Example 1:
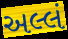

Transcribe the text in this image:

અલ્લં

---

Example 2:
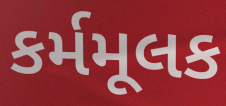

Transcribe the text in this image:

કર્મમૂલક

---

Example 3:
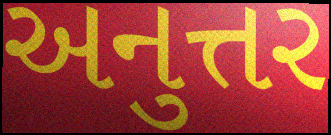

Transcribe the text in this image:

અનુત્તર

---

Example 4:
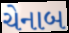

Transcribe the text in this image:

ચેનાબ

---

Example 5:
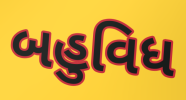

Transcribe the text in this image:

બહુવિધ